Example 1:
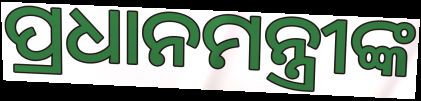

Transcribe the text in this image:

ପ୍ରଧାନମନ୍ତ୍ରୀଙ୍କ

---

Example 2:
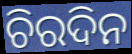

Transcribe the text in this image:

ଚିରଦିନ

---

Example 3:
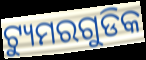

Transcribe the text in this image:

ଟ୍ୟୁମରଗୁଡିକ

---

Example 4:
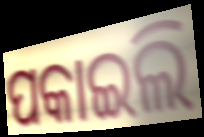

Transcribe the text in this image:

ପକାଇଲି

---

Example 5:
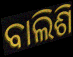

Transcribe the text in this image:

ବାଲିଶି